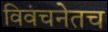
विवंचनेतच